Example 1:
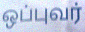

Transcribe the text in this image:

ஒப்புவர்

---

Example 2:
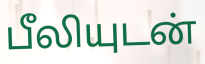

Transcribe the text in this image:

பீலியுடன்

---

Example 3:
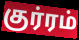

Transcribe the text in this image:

குர்ரம்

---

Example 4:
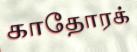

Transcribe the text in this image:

காதோரக்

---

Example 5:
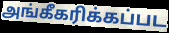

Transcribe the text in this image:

அங்கீகரிக்கப்பட